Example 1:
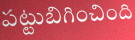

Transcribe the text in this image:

పట్టుబిగించింది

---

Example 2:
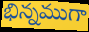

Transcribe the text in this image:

భిన్నముగా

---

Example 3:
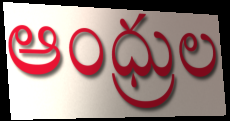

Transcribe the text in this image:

ఆంధ్రుల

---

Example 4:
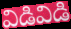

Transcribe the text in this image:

విడివిడి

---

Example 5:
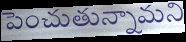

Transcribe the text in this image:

పెంచుతున్నామని